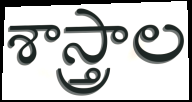
శాస్త్రాల